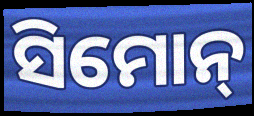
ସିମୋନ୍